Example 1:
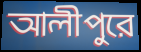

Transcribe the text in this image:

আলীপুরে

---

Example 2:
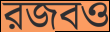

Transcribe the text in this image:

রজবও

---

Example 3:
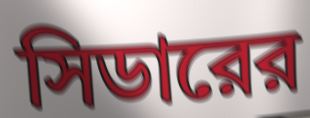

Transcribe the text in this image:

সিডারের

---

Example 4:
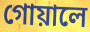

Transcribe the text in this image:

গোয়ালে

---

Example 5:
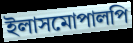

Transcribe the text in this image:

ইলাসমোপালপি